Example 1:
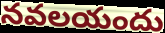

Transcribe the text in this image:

నవలయందు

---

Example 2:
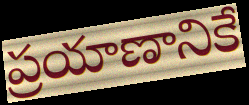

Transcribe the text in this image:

ప్రయాణానికే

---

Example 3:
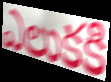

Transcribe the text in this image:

ఎలుకకి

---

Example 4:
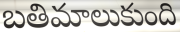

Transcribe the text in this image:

బతిమాలుకుంది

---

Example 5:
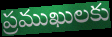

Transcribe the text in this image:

ప్రముఖులకు